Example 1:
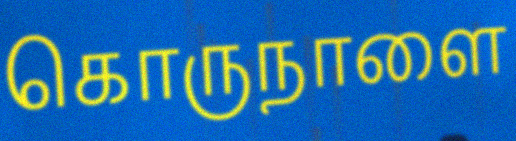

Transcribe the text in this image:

கொருநாளை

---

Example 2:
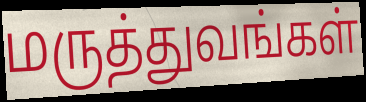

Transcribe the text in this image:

மருத்துவங்கள்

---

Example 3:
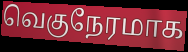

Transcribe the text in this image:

வெகுநேரமாக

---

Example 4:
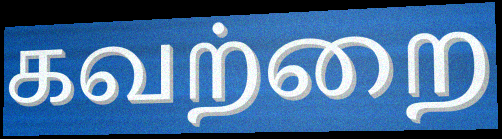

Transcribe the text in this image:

கவற்றை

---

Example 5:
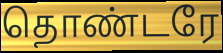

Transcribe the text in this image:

தொண்டரே